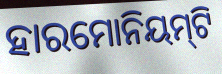
ହାରମୋନିୟମ୍‍ଟି